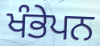
ਖੰਭੇਪਨ